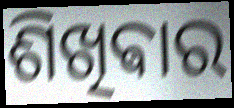
ଶିଖିଵାର